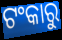
ଟଂକାରୁ